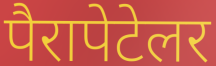
पैरापेटेलर